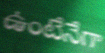
ఉంటేనేగా